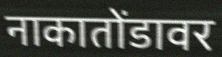
नाकातोंडावर